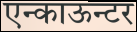
एन्काऊन्टर